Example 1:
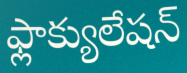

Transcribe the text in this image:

ఫ్లాక్యులేషన్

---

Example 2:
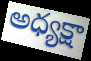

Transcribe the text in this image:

అధ్యక్షా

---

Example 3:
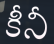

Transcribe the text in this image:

కీనీ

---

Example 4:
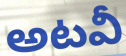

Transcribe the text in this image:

అటవీ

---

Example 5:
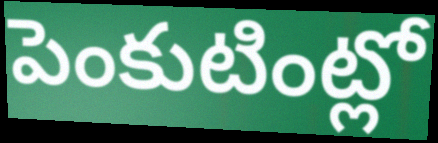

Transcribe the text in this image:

పెంకుటింట్లో